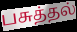
பசுத்தல்